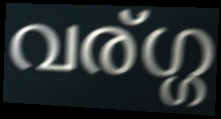
വര്ഗ്ഗ